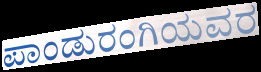
ಪಾಂಡುರಂಗಿಯವರ